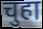
चुहा